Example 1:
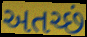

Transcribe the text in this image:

અતચ્છં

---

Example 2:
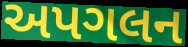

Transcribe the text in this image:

અપગલન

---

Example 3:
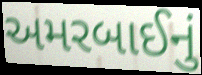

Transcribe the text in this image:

અમરબાઈનું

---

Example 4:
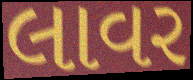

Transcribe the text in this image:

લાવર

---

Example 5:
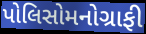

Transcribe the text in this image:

પોલિસોમનોગ્રાફી